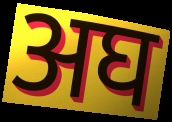
अघ